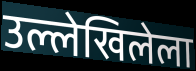
उल्लेखिलेला